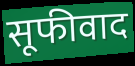
सूफीवाद